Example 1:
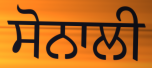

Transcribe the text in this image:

ਸੋਨਾਲੀ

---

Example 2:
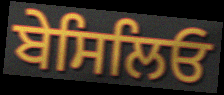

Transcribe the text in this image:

ਬੇਸਿਲਿਓ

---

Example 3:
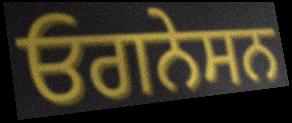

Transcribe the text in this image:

ਓਗਨੇਸਨ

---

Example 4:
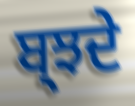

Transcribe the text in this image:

ਬ੍ਝਦੇ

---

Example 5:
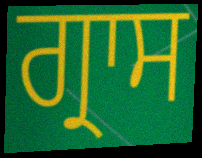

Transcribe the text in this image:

ਗ੍ਰਾਸ